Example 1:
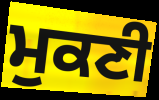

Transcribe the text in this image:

ਮੁਕਣੀ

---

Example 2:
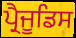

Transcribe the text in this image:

ਪ੍ਰੈਜੂਡਿਸ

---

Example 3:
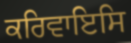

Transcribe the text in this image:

ਕਰਿਵਾਇਸਿ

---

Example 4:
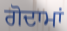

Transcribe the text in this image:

ਗੋਦਾਮਾਂ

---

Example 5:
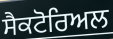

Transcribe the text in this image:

ਸੈਕਟੋਰਿਅਲ